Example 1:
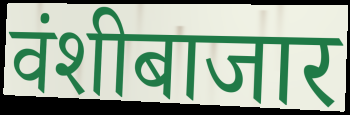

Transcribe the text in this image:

वंशीबाजार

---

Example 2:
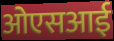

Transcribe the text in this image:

ओएसआई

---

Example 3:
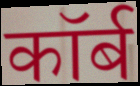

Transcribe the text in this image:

कॉर्ब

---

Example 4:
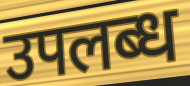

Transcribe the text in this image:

उपलब्‍ध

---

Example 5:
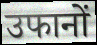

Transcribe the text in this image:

उफानों